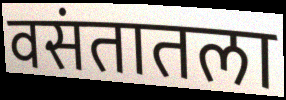
वसंतातला